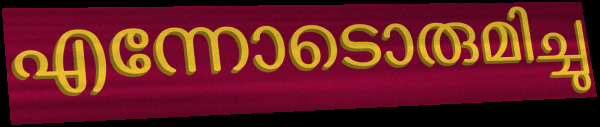
എന്നോടൊരുമിച്ചു